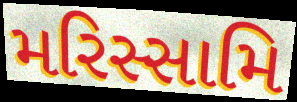
મરિસ્સામિ